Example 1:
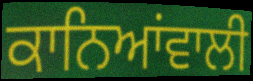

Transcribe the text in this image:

ਕਾਨਿਆਂਵਾਲੀ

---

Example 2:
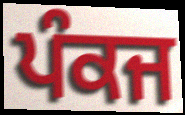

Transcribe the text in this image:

ਪੰਕਜ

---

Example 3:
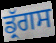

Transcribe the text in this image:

ਡ੍ਰੱਗਸ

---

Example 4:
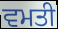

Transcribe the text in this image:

ਵਮਤੀ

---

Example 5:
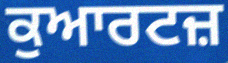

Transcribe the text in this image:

ਕੁਆਰਟਜ਼